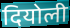
दियोली